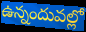
ఉన్నందువల్లో